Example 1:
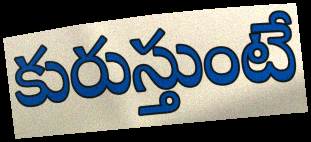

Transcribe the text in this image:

కురుస్తుంటే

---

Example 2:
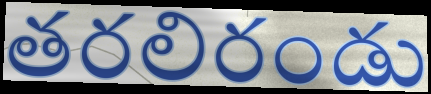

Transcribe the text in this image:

తరలిరండు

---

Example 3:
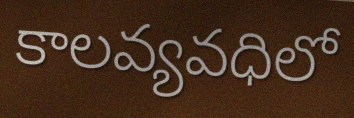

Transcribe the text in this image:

కాలవ్యవధిలో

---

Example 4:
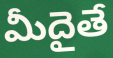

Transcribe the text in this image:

మీదైతే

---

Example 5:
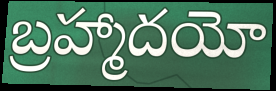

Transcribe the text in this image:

బ్రహ్మాదయో